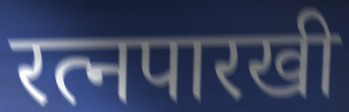
रत्नपारखी